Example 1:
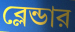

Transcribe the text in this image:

ব্লেন্ডার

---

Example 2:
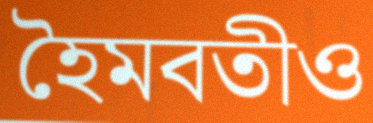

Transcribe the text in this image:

হৈমবতীও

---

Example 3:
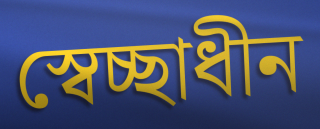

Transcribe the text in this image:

স্বেচ্ছাধীন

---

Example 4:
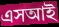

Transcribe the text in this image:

এসআই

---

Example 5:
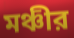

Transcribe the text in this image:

মঞ্চীর